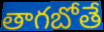
తాగబోతే